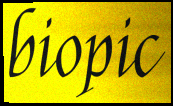
biopic